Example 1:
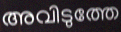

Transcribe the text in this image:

അവിടുത്തേ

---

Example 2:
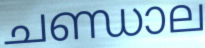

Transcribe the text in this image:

ചണ്ഡാല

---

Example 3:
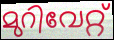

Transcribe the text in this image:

മുറിവേറ്റ്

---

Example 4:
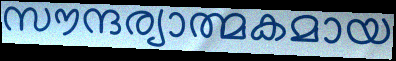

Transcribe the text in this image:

സൗന്ദര്യാത്മകമായ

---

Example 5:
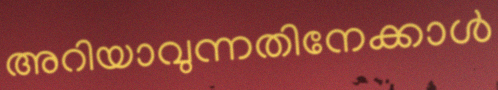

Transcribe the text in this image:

അറിയാവുന്നതിനേക്കാൾ